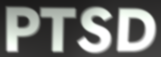
PTSD